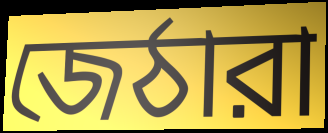
জেঠারা